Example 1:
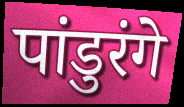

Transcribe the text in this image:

पांडुरंगे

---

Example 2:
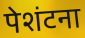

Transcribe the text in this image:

पेशंटना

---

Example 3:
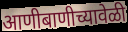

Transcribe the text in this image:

आणीबाणीच्यावेळी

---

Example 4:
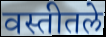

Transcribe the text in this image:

वस्तीतले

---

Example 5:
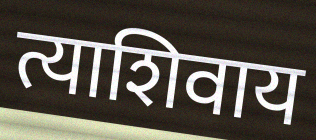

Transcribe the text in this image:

त्याशिवाय